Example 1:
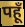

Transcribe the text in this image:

पहूँ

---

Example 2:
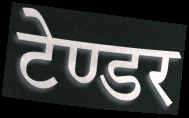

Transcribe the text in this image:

टेण्‍डर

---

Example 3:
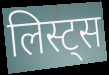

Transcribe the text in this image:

लिस्ट्स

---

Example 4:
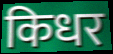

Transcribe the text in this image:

किधर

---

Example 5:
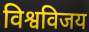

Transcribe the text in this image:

विश्वविजय